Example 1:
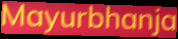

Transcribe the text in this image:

Mayurbhanja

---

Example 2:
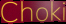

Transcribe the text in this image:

Choki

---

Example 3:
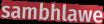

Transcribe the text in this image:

sambhlawe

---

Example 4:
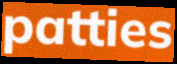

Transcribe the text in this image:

patties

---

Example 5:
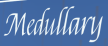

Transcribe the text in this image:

Medullary